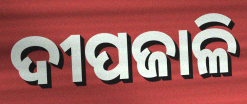
ଦୀପଜାଳି